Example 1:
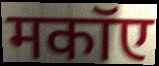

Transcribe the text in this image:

मकॉए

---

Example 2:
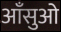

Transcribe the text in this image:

आँसुओ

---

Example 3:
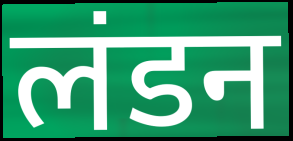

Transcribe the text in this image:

लंडन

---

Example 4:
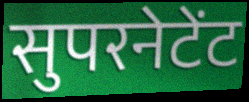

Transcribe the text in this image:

सुपरनेटेंट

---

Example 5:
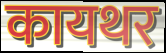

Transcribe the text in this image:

कायथर